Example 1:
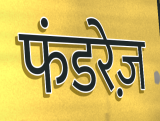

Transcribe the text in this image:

फंडरेज़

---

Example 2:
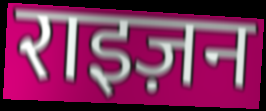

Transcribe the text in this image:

राइज़न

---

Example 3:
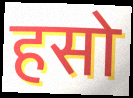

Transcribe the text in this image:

हसो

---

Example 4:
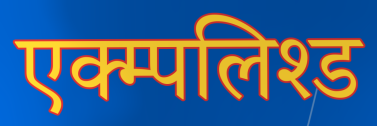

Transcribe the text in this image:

एक्म्पलिश्ड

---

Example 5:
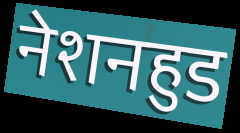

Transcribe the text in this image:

नेशनहुड